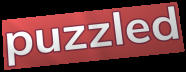
puzzled